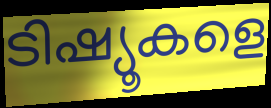
ടിഷ്യൂകളെ